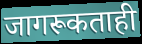
जागरूकताही